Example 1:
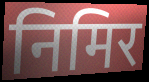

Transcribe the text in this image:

निमिर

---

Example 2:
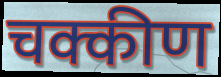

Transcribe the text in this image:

चक्कीण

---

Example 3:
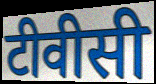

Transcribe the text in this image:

टीवीसी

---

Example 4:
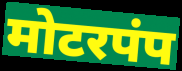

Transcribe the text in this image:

मोटरपंप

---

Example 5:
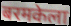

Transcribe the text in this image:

बरमकेला